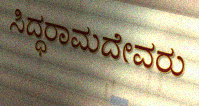
ಸಿದ್ಧರಾಮದೇವರು